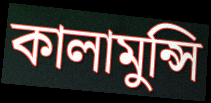
কালামুন্সি